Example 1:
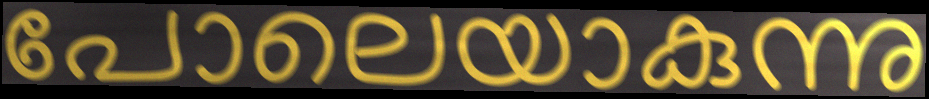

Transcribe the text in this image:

പോലെയാകുന്നു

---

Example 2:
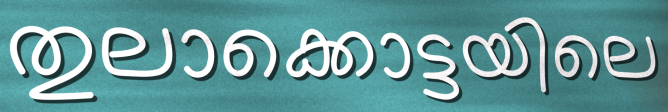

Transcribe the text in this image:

തുലാക്കൊട്ടയിലെ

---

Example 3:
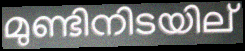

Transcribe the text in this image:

മുണ്ടിനിടയില്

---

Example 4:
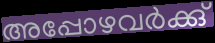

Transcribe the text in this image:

അപ്പോഴവർക്കു്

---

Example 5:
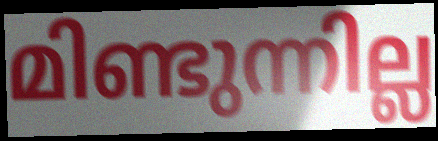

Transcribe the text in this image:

മിണ്ടുന്നില്ല